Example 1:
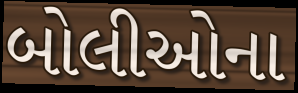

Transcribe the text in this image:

બોલીઓના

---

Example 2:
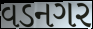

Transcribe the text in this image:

વડનગર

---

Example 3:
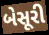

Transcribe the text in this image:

બેસૂરી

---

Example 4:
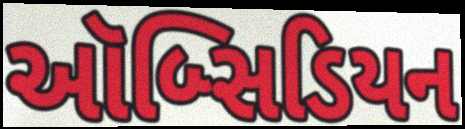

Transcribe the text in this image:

ઑબ્સિડિયન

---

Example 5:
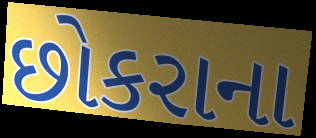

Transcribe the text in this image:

છોકરાના